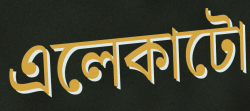
এলেকাটো